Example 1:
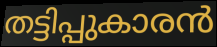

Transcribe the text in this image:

തട്ടിപ്പുകാരൻ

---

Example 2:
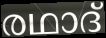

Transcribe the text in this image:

രഥാദ്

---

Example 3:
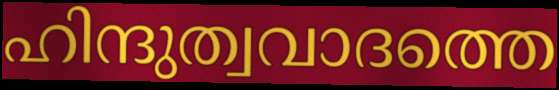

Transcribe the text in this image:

ഹിന്ദുത്വവാദത്തെ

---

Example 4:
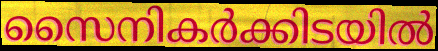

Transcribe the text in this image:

സൈനികർക്കിടയിൽ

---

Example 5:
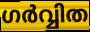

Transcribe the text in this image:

ഗർവ്വിത